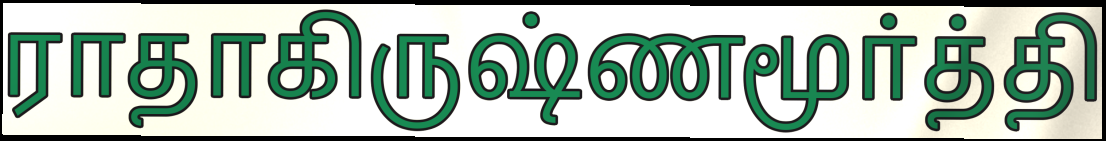
ராதாகிருஷ்ணமூர்த்தி